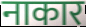
नाकार